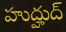
హుద్హుద్